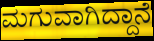
ಮಗುವಾಗಿದ್ದಾನೆ